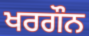
ਖਰਗੌਨ